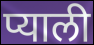
प्याली